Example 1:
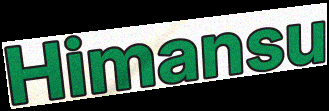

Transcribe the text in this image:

Himansu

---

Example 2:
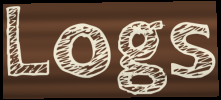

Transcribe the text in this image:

Logs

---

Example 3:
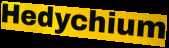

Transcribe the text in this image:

Hedychium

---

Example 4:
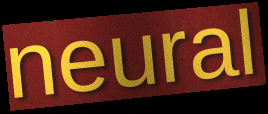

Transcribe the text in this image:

neural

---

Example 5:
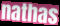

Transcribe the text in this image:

nathas